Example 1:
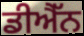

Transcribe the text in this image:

ਡੀਐੱਨ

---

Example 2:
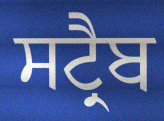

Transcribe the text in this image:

ਸਟ੍ਰੈਬ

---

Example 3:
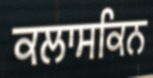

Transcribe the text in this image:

ਕਲਾਸਕਿਨ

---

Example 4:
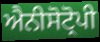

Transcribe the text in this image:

ਐਨੀਸੋਟ੍ਰੋਪੀ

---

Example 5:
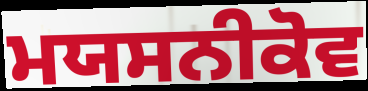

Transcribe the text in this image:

ਮਯਸਨੀਕੋਵ